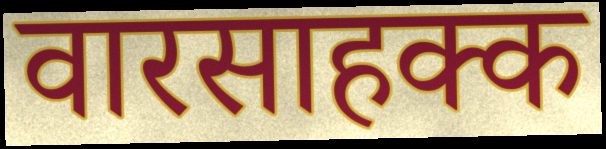
वारसाहक्क